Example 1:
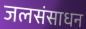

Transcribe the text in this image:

जलसंसाधन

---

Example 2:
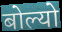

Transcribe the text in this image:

बोल्यो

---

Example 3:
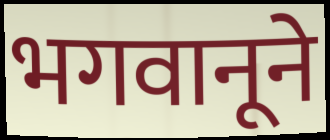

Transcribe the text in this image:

भगवानूने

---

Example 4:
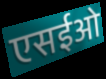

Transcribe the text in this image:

एसईओ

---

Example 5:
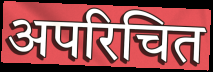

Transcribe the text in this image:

अपरिचित